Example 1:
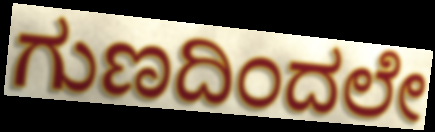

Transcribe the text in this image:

ಗುಣದಿಂದಲೇ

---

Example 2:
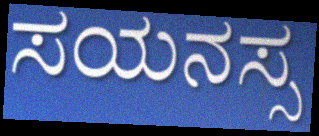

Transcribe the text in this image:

ಸಯನಸ್ಸ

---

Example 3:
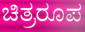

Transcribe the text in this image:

ಚಿತ್ರರೂಪ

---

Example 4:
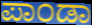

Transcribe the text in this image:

ಪಾಂಡಾ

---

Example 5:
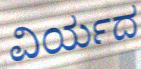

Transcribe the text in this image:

ವಿರ್ಯದ